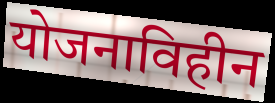
योजनाविहीन